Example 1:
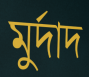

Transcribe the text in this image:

মুৰ্দাদ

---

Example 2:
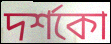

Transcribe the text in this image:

দৰ্শকো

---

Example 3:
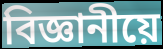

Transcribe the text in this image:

বিজ্ঞানীয়ে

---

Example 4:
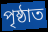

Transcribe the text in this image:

পৃষ্ঠাত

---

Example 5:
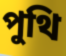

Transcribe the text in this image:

পুথি